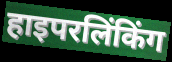
हाइपरलिंकिंग